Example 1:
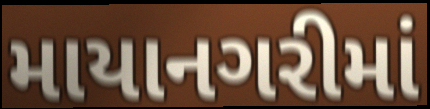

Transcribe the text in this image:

માયાનગરીમાં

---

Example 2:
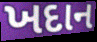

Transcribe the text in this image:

ખદાન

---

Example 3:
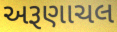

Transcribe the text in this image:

અરૂણાચલ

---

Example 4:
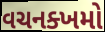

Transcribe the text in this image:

વચનક્ખમો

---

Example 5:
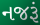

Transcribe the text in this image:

નજરૂં